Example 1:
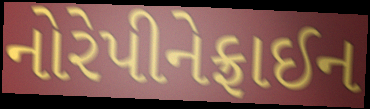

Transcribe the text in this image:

નોરેપીનેફ્રાઈન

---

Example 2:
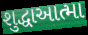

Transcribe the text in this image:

શુદ્ધાઆત્મા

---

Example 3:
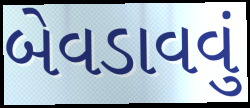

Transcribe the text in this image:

બેવડાવવું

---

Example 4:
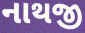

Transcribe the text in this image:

નાથજી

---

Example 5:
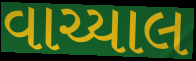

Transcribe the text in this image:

વાચ્યાલ